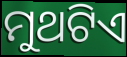
ମୁଥଟିଏ